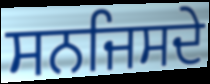
ਸਨਜਿਸਦੇ